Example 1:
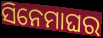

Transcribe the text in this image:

ସିନେମାଘର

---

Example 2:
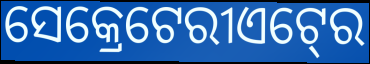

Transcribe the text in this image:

ସେକ୍ରେଟେରୀଏଟ୍‍ରେ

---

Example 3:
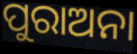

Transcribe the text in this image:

ପୁରାଅନା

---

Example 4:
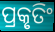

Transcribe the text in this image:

ପ୍ରକୃତିଂ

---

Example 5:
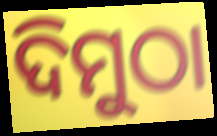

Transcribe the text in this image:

ଦିମୁଠା